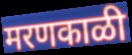
मरणकाळी